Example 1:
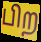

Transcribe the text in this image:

பிற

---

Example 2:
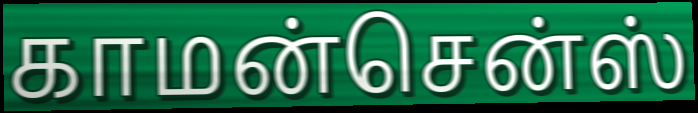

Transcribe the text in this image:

காமன்சென்ஸ்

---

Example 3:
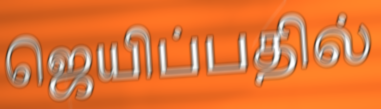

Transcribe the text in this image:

ஜெயிப்பதில்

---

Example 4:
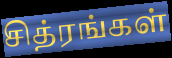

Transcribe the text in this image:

சித்ரங்கள்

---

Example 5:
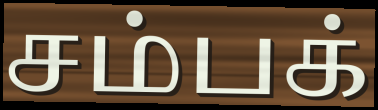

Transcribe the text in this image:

சம்பக்